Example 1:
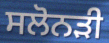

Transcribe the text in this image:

ਸਲੋਨੜੀ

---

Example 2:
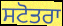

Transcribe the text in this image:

ਸਟੋਤਰਾ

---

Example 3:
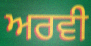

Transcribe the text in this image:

ਅਰਵੀ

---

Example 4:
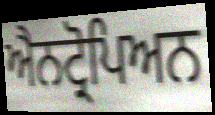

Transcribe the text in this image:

ਐਨਟ੍ਰੋਪਿਅਨ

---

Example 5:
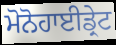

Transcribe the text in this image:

ਮੋਨੋਹਾਈਡ੍ਰੇਟ